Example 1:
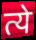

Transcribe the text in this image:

त्ये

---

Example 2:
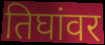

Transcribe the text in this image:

तिघांवर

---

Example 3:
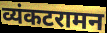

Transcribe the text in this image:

व्यंकटरामन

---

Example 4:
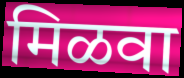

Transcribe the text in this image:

मिळवा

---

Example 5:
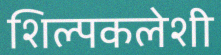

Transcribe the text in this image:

शिल्पकलेशी